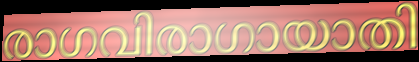
രാഗവിരാഗായാതി